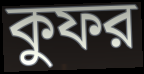
কুফর